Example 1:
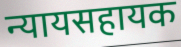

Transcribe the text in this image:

न्यायसहायक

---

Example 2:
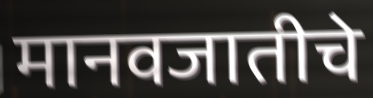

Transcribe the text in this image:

मानवजातीचे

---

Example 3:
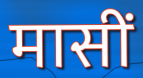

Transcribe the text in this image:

मासीं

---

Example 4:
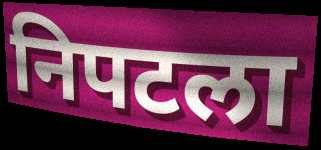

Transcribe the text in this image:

निपटला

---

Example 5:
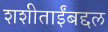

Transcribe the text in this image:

शशीताईंबद्दल